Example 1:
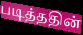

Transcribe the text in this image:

படித்ததின்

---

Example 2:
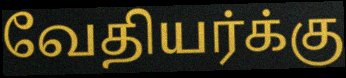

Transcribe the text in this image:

வேதியர்க்கு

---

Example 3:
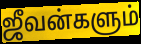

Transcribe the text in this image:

ஜீவன்களும்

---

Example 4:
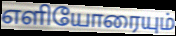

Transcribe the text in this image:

எளியோரையும்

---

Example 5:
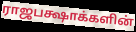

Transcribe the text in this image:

ராஜபக்ஷாக்களின்